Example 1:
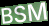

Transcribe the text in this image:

BSM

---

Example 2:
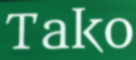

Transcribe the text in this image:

Tako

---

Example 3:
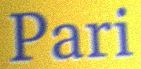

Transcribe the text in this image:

Pari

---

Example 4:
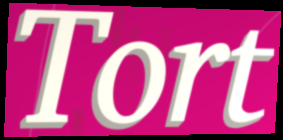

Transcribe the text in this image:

Tort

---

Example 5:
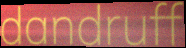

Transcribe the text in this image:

dandruff